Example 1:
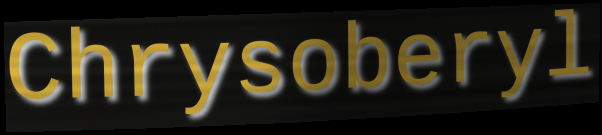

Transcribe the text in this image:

Chrysoberyl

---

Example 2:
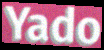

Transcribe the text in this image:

Yado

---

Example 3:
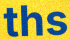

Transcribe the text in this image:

ths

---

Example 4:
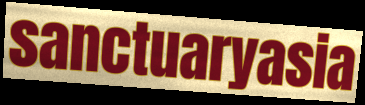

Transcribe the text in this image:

sanctuaryasia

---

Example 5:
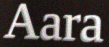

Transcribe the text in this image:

Aara